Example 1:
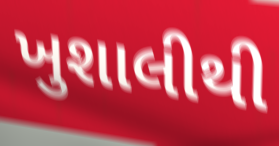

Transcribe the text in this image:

ખુશાલીથી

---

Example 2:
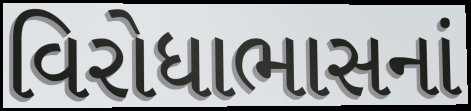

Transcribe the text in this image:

વિરોધાભાસનાં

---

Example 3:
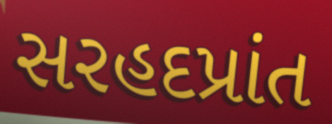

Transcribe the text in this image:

સરહદપ્રાંત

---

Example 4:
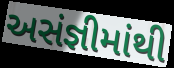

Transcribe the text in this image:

અસંજ્ઞીમાંથી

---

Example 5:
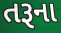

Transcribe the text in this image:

તરૂના